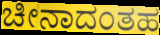
ಚೀನಾದಂತಹ